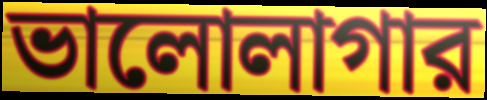
ভালোলাগার